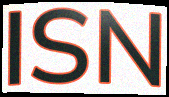
ISN